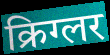
क्रिग्लर